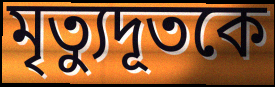
মৃত্যুদূতকে